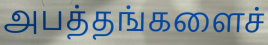
அபத்தங்களைச்